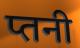
प्तनी